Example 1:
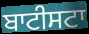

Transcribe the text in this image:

ਬਾਟੀਸਟਾ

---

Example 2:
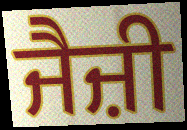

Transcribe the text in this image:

ਜੈਜ਼ੀ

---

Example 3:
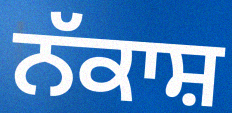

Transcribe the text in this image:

ਨੱਕਾਸ਼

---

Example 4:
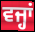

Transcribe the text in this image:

ਵਜ੍ਹਾਂ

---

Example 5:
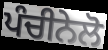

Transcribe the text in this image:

ਪੰਚੀਨੇਲੋ